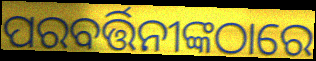
ପରବର୍ତ୍ତିନୀଙ୍କଠାରେ